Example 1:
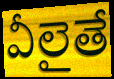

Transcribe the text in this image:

వీలైతే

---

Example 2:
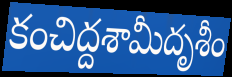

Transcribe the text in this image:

కంచిద్దశామీదృశీం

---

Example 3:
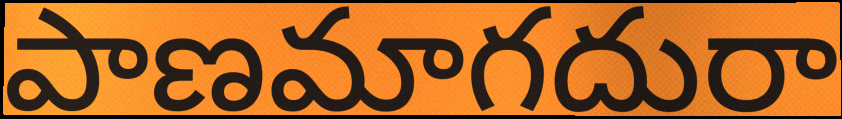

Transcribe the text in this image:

పాణమాగదురా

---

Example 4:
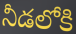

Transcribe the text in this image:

నీడలోకి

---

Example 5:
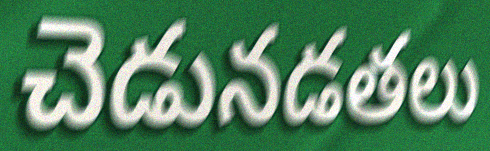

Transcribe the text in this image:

చెడునడతలు